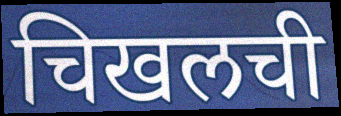
चिखलची